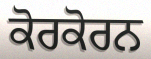
ਕੋਰਕੋਰਨ